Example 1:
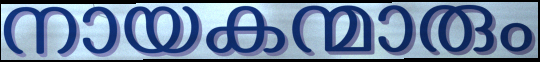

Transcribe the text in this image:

നായകന്മാരും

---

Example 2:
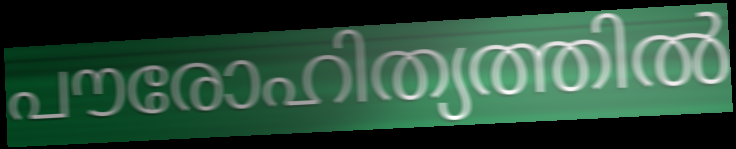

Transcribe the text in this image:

പൗരോഹിത്യത്തിൽ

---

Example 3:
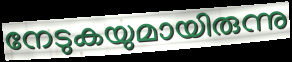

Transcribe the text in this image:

നേടുകയുമായിരുന്നു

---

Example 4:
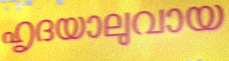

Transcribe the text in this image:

ഹൃദയാലുവായ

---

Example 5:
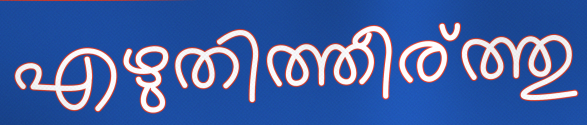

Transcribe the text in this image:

എഴുതിത്തീര്ത്തു